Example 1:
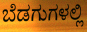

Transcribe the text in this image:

ಬೆಡಗುಗಳಲ್ಲಿ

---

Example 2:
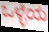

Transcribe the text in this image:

ಒಳ್ಳೆಯ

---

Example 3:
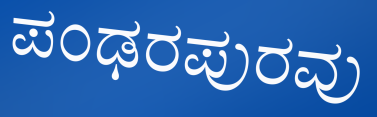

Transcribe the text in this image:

ಪಂಢರಪುರವು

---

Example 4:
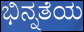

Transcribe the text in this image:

ಭಿನ್ನತೆಯ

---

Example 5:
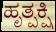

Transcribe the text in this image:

ಹೃತ್ಪಕ್ಷಿ